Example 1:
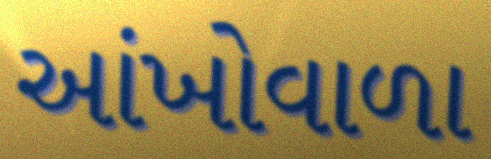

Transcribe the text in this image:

આંખોવાળા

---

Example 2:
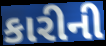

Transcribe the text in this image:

કારીની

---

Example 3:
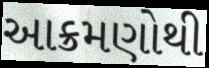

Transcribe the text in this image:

આક્રમણોથી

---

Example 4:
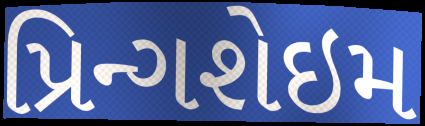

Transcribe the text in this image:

પ્રિન્ગશેઇમ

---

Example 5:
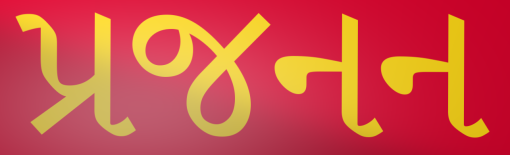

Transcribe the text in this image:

પ્રજનન